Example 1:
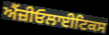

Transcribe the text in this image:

ਐਂਜ਼ੀਓਲਾਈਟਿਕਸ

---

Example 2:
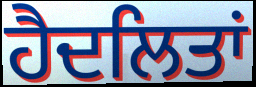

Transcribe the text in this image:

ਹੈਦਲਿਤਾਂ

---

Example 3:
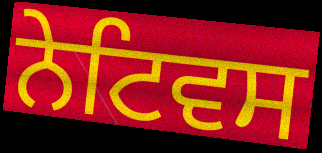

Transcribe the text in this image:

ਨੇਟਿਵਸ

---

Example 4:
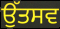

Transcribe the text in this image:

ਉੱਤਸਵ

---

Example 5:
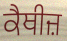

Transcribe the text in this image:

ਕੈਥੀਜ਼